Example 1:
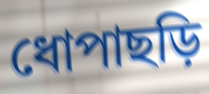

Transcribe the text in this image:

ধোপাছড়ি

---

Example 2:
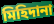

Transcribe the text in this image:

মিহিদানা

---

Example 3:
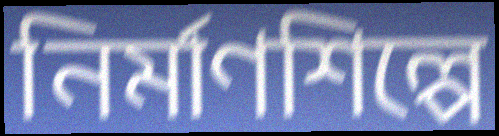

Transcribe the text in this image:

নির্মাণশিল্পে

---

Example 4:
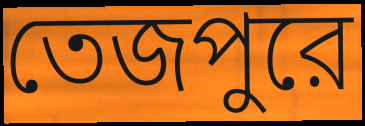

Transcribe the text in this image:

তেজপুরে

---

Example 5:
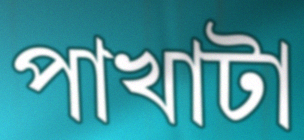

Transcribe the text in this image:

পাখাটা